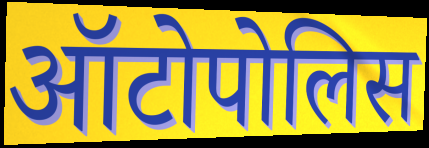
ऑटोपोलिस